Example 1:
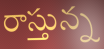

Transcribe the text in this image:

రాస్తున్న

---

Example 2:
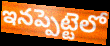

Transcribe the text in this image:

ఇనప్పెట్టెలో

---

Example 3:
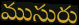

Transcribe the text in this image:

ముసురు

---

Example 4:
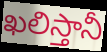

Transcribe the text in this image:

ఖలిస్తానీ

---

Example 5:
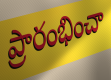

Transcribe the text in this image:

ప్రారంభించా